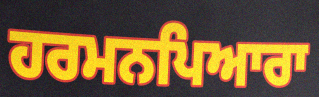
ਹਰਮਨਪਿਆਰਾ